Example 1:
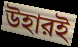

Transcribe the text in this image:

উহারই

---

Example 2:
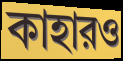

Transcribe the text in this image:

কাহারও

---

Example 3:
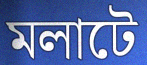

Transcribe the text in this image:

মলাটে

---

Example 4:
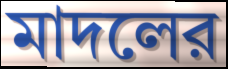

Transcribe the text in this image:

মাদলের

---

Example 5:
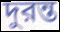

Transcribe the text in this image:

দুরন্ত